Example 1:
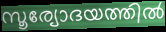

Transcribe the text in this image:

സൂര്യോദയത്തിൽ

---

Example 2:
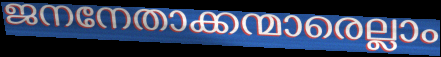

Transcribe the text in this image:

ജനനേതാക്കന്മാരെല്ലാം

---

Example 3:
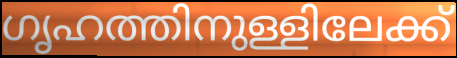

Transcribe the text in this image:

ഗൃഹത്തിനുള്ളിലേക്ക്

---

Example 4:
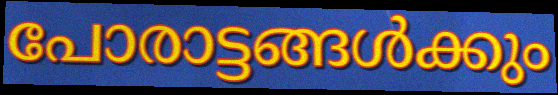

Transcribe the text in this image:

പോരാട്ടങ്ങൾക്കും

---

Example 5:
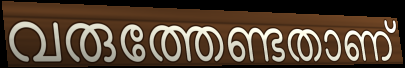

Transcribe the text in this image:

വരുത്തേണ്ടതാണ്